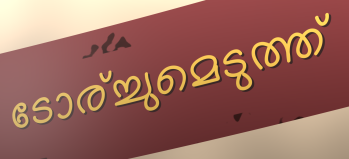
ടോര്ച്ചുമെടുത്ത്